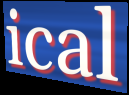
ical